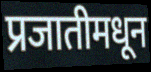
प्रजातीमधून